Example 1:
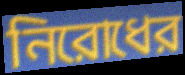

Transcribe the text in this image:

নিরোধের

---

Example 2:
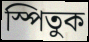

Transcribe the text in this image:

স্পিতুক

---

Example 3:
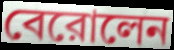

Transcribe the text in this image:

বেরোলেন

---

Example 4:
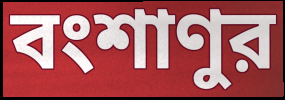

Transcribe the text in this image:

বংশাণুর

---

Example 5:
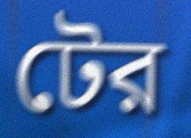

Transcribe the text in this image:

টের